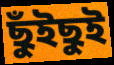
ছুঁইছুই